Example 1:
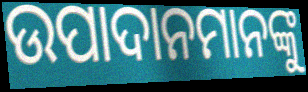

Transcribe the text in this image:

ଉପାଦାନମାନଙ୍କୁ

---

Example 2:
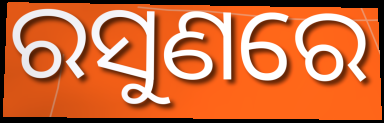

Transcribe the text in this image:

ରସୁଣରେ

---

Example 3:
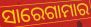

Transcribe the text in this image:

ସାରେଗାମାର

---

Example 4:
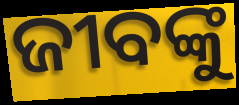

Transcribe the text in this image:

ଜୀବଙ୍କୁ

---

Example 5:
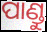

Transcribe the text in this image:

ପାଣ୍ଡୁ